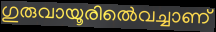
ഗുരുവായൂരിൽെവച്ചാണ്